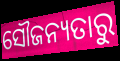
ସୌଜନ୍ୟତାରୁ